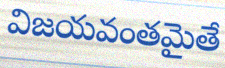
విజయవంతమైతే